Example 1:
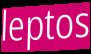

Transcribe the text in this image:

leptos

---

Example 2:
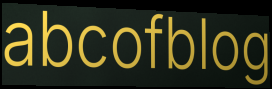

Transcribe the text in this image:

abcofblog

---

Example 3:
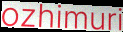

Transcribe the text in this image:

ozhimuri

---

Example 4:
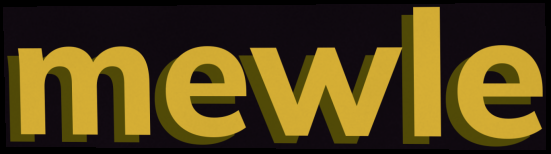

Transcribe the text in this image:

mewle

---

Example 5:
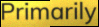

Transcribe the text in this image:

Primarily